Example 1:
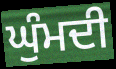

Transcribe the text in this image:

ਘੁੰਮਦੀ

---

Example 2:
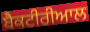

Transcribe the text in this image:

ਬੈਕਟੀਰੀਆਲ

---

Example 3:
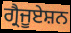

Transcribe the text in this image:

ਗ੍ਰੈਜੂਏਸ਼ਨ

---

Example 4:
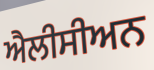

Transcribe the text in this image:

ਐਲੀਸੀਅਨ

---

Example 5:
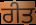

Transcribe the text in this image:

ਰੀਤ